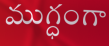
ముగ్ధంగా